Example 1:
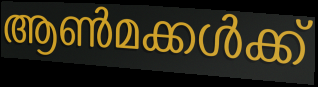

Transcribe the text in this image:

ആൺമക്കൾക്ക്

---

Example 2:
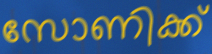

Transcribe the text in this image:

സോണിക്ക്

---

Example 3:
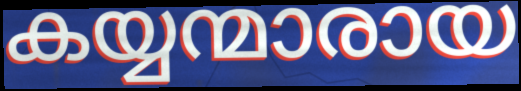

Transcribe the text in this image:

കയ്യന്മാരായ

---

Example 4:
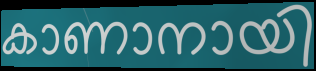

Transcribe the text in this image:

കാണാനായി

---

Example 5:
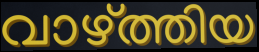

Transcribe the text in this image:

വാഴ്ത്തിയ